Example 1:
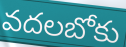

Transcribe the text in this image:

వదలబోకు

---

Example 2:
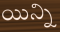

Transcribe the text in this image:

యిన్ని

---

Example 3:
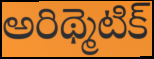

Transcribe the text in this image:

అరిథ్మెటిక్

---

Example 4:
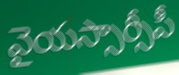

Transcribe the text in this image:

వైయస్సార్సీపీ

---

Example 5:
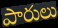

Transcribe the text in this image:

పారులు